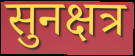
सुनक्षत्र